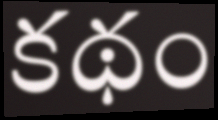
కథం